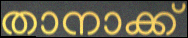
താനാക്ക്